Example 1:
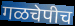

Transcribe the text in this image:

गळचेपीच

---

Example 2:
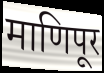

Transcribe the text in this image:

माणिपूर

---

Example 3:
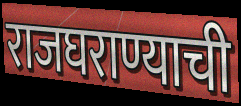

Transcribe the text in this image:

राजघराण्याची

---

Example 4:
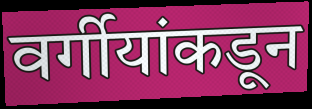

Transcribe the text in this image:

वर्गीयांकडून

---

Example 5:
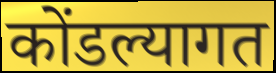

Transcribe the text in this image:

कोंडल्यागत